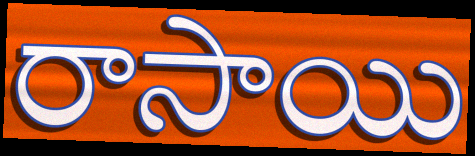
రాసాయి